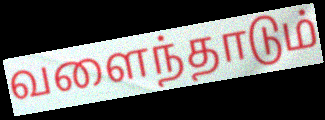
வளைந்தாடும்